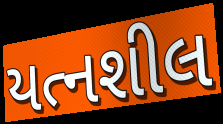
યત્નશીલ